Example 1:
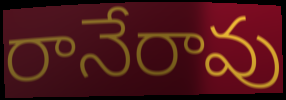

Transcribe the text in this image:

రానేరావు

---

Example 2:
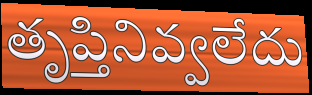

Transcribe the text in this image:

తృప్తినివ్వలేదు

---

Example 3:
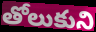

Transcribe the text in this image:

తోలుకుని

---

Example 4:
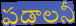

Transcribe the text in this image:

పడాలనీ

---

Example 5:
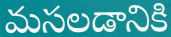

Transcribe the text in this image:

మసలడానికి